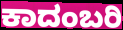
ಕಾದಂಬರಿ